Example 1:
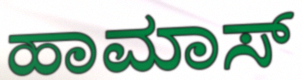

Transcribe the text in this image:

ಹಾಮಾಸ್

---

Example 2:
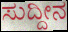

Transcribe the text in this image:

ಸುದ್ದೀನ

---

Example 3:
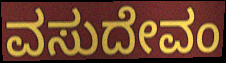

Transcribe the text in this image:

ವಸುದೇವಂ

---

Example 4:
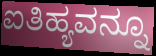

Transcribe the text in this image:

ಐತಿಹ್ಯವನ್ನೂ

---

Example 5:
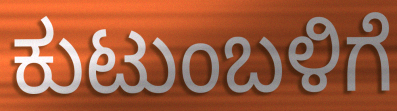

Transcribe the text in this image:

ಕುಟುಂಬಳಿಗೆ